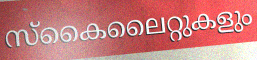
സ്കൈലൈറ്റുകളും